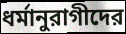
ধর্মানুরাগীদের